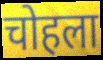
चोहला